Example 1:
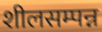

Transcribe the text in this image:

शीलसम्पन्न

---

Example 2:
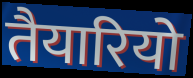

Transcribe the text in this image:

तैयारियो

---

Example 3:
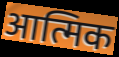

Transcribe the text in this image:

आत्मिक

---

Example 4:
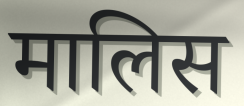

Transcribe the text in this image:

मालिस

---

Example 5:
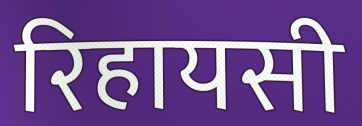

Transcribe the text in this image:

रिहायसी